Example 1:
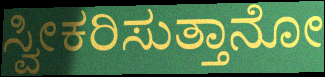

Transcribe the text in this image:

ಸ್ವೀಕರಿಸುತ್ತಾನೋ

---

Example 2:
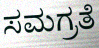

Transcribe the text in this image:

ಸಮಗ್ರತೆ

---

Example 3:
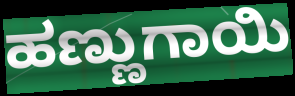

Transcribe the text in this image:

ಹಣ್ಣುಗಾಯಿ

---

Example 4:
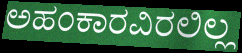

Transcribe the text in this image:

ಅಹಂಕಾರವಿರಲಿಲ್ಲ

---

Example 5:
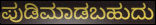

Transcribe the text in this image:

ಪುಡಿಮಾಡಬಹುದು